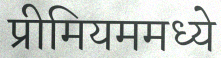
प्रीमियममध्ये